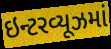
ઇન્ટરવ્યૂઝમાં